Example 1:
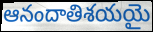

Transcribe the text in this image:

ఆనందాతిశయయై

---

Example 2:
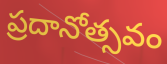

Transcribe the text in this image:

ప్రదానోత్సవం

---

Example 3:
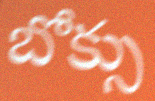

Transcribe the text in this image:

బోక్సు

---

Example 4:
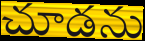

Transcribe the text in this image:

చూడను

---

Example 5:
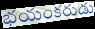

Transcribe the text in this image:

భయంకరుడు